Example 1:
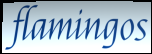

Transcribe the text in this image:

flamingos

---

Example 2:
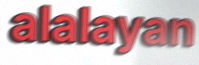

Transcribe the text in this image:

alalayan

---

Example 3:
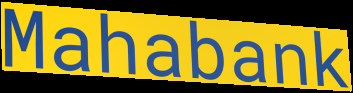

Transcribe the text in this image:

Mahabank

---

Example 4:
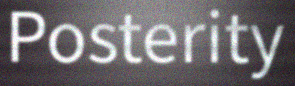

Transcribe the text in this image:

Posterity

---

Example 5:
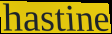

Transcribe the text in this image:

hastine